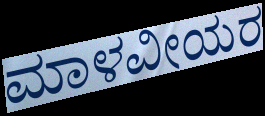
ಮಾಳವೀಯರ